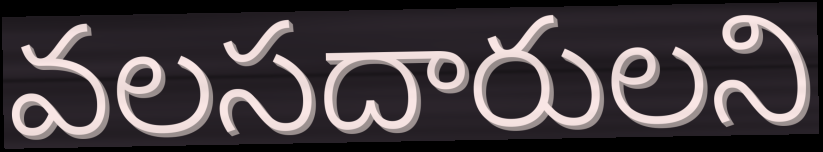
వలసదారులని